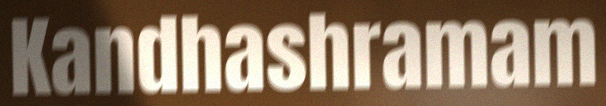
Kandhashramam